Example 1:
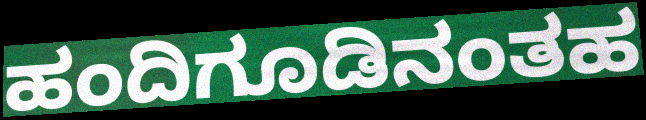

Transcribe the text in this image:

ಹಂದಿಗೂಡಿನಂತಹ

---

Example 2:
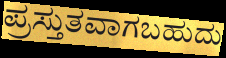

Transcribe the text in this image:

ಪ್ರಸ್ತುತವಾಗಬಹುದು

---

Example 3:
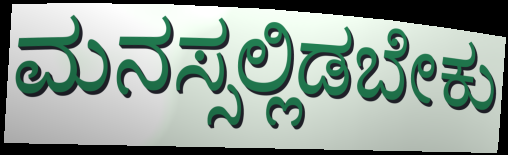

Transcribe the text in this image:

ಮನಸ್ಸಲ್ಲಿಡಬೇಕು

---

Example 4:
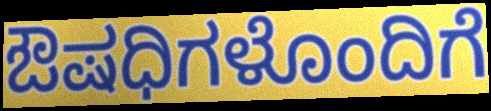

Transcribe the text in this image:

ಔಷಧಿಗಳೊಂದಿಗೆ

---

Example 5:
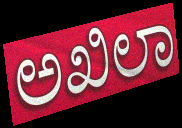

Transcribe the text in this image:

ಅಖಿಲಾ